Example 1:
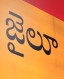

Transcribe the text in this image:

జైలూ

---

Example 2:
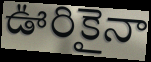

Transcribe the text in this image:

ఊరికైనా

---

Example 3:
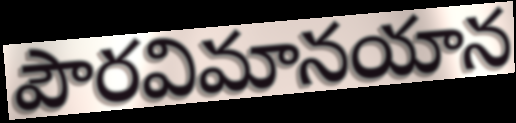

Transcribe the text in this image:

పౌరవిమానయాన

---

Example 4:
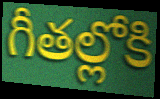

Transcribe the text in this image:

గీతల్లోకి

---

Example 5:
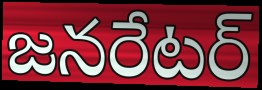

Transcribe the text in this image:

జనరేటర్